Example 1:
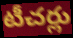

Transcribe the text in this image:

టీచర్లు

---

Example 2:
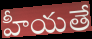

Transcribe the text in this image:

హీయతే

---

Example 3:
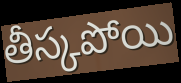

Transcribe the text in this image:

తీస్కపోయి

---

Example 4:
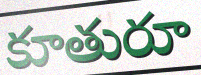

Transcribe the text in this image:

కూతురూ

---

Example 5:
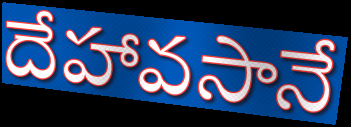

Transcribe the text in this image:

దేహావసానే